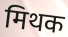
मिथक